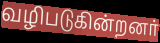
வழிபடுகின்றனர்